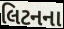
લિટનના